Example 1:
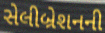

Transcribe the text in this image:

સેલીબ્રેશનની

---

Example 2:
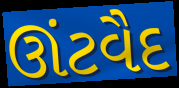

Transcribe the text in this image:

ઊંટવૈદ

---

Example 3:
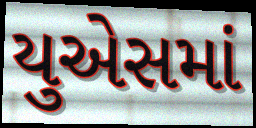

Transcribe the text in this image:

યુએસમાં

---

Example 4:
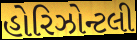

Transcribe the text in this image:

હોરિઝોન્ટલી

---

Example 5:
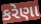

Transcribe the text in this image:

કરેણા